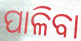
ପାଳିବା